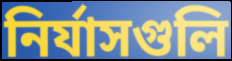
নির্যাসগুলি